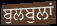
ਬੁਲਬੁਲਾਂ